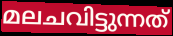
മലചവിട്ടുന്നത്